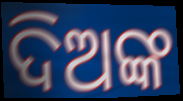
ଦିଅଙ୍କ